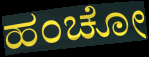
ಹಂಚೋ